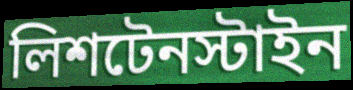
লিশটেনস্টাইন